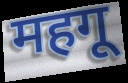
महगू